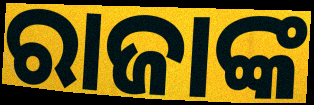
ରାଜାଙ୍କ